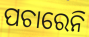
ପଚାରେନି